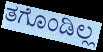
ತಗೊಂಡಿಲ್ಲ